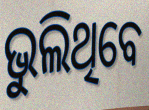
ଭୁଲିଥିବେ